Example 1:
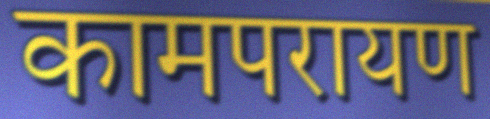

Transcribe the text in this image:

कामपरायण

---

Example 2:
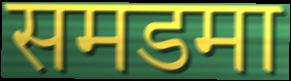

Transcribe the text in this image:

समडमा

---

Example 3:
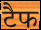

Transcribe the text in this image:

टैफ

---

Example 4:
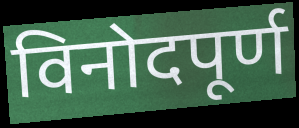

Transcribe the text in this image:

विनोदपूर्ण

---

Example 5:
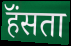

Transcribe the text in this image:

हॅंसता